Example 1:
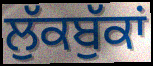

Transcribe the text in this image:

ਲੁੱਕਬੁੱਕਾਂ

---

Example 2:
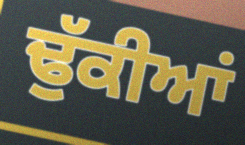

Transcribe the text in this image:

ਢੁੱਕੀਆਂ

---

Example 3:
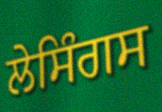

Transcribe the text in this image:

ਲੇਸਿੰਗਸ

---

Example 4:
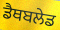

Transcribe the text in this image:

ਡੈਥਬਲੇਡ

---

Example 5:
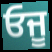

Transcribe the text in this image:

ਓਜੂ